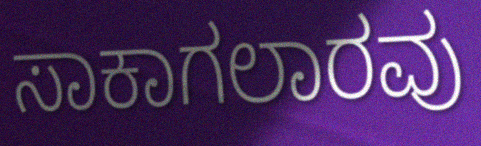
ಸಾಕಾಗಲಾರವು